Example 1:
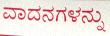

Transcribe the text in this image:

ವಾದನಗಳನ್ನು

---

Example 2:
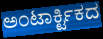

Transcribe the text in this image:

ಅಂಟಾರ್ಕ್ಟಿಕದ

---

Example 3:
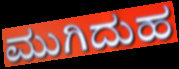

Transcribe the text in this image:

ಮುಗಿದುಹ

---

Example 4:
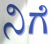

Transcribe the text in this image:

ನಿಗೆ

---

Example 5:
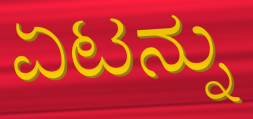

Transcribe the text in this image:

ಏಟನ್ನು